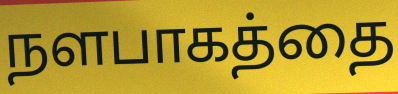
நளபாகத்தை